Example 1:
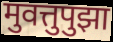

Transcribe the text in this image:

मुवत्तुपुझा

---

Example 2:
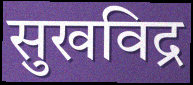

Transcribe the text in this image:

सुखविद्र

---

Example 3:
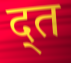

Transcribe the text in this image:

द्त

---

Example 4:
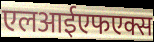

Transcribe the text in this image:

एलआईएफएक्स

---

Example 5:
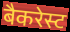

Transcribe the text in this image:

बैकरेस्ट